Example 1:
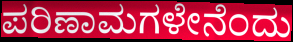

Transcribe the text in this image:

ಪರಿಣಾಮಗಳೇನೆಂದು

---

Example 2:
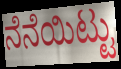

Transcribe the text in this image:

ನೆನೆಯಿಟ್ಟು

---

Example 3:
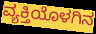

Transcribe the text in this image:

ವ್ಯಕ್ತಿಯೊಳಗಿನ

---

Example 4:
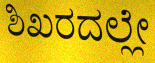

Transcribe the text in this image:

ಶಿಖರದಲ್ಲೇ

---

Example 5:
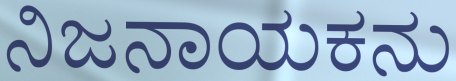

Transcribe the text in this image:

ನಿಜನಾಯಕನು